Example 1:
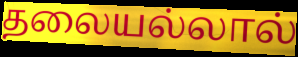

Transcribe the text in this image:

தலையல்லால்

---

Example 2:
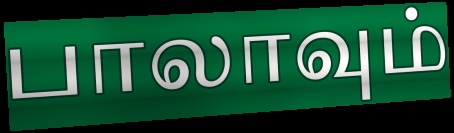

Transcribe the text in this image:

பாலாவும்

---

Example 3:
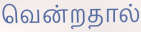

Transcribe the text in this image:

வென்றதால்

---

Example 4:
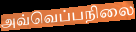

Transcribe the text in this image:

அவ்வெப்பநிலை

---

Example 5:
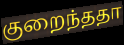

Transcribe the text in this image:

குறைந்ததா